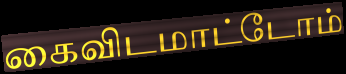
கைவிடமாட்டோம்